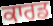
ਕਾਰਡ